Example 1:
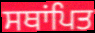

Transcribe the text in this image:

ਸਥਾਂਪਿਤ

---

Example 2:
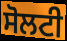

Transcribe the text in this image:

ਸੋਲਟੀ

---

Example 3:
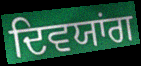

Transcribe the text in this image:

ਦਿਵਯਾਂਗ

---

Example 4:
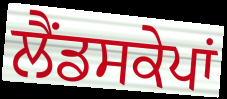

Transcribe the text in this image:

ਲੈਂਡਸਕੇਪਾਂ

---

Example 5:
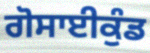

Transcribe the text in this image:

ਗੋਸਾਈਕੁੰਡ